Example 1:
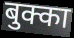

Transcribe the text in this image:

बुक्का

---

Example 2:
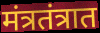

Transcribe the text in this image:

मंत्रतंत्रात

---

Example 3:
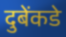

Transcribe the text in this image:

दुबेंकडे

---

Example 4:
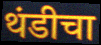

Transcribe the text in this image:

थंडीचा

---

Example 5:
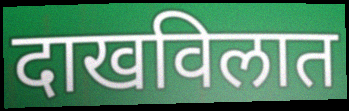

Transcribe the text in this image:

दाखविलात